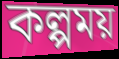
কল্পময়